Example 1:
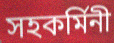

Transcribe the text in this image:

সহকর্মিনী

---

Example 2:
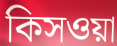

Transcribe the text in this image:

কিসওয়া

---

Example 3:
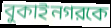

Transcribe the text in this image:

বুকাইনগরকে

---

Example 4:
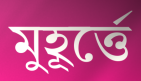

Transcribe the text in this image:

মুহূর্ত্তে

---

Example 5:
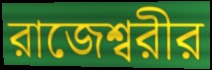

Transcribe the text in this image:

রাজেশ্বরীর